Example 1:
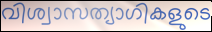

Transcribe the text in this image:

വിശ്വാസത്യാഗികളുടെ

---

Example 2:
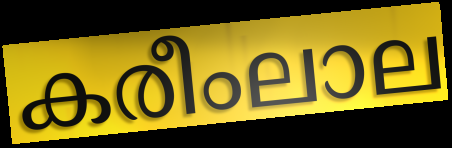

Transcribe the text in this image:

കരീംലാല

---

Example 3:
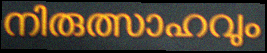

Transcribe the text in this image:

നിരുത്സാഹവും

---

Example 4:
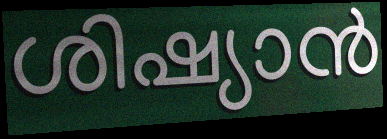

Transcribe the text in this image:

ശിഷ്യാൻ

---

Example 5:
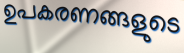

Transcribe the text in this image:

ഉപകരണങ്ങളുടെ